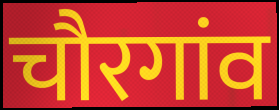
चौरगांव